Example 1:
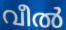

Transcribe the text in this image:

വീൽ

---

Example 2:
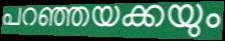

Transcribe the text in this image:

പറഞ്ഞയക്കയും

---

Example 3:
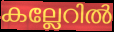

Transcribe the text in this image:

കല്ലേറിൽ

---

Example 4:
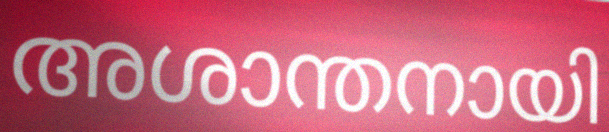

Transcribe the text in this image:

അശാന്തനായി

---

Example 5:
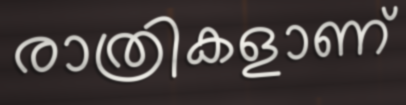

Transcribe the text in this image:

രാത്രികളാണ്